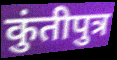
कुंतीपुत्र